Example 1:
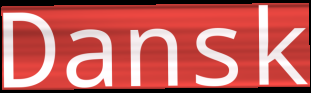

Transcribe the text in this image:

Dansk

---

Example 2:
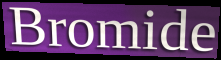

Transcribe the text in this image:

Bromide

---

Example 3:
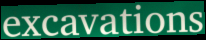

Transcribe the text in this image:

excavations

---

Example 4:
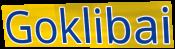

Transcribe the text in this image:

Goklibai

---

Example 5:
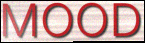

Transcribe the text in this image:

MOOD